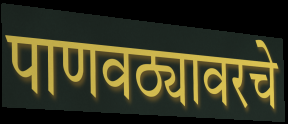
पाणवठ्यावरचे